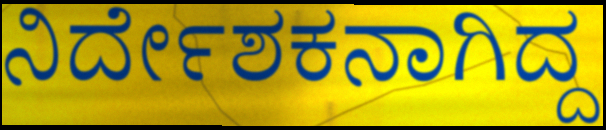
ನಿರ್ದೇಶಕನಾಗಿದ್ದ